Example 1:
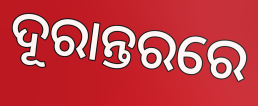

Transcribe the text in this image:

ଦୂରାନ୍ତରରେ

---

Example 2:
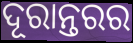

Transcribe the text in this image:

ଦୂରାନ୍ତରର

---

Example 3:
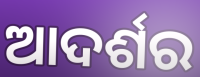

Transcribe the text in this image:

ଆଦର୍ଶର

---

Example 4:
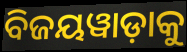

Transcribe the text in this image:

ବିଜୟୱାଡ଼ାକୁ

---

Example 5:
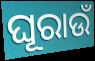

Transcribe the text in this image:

ଘୂରାଉଁ